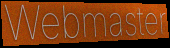
Webmaster